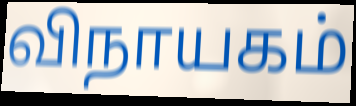
விநாயகம்